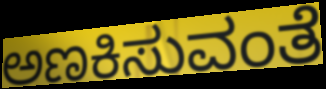
ಅಣಕಿಸುವಂತೆ